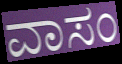
ವಾಸಂ